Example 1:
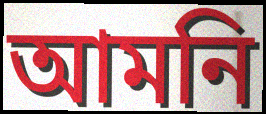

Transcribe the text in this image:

আমনি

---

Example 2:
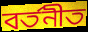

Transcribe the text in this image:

বৰ্তনীত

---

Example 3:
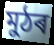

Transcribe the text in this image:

মুঠৰ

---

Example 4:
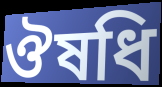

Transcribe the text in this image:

ঔষধি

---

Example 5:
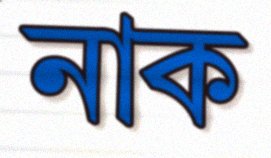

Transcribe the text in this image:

নাক